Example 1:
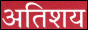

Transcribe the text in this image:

अतिशय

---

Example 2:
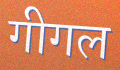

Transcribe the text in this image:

गीगल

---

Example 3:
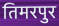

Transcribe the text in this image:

तिमरपुर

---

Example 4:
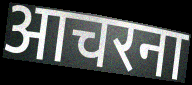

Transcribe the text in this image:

आचरना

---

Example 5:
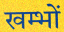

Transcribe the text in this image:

खम्भों